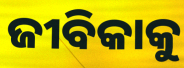
ଜୀବିକାକୁ